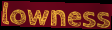
lowness